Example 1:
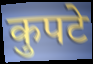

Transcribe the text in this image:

कुपटे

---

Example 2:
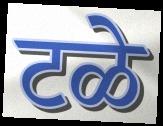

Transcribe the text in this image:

टळे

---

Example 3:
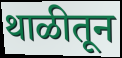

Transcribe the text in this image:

थाळीतून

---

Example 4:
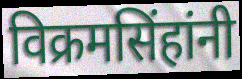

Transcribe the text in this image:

विक्रमसिंहांनी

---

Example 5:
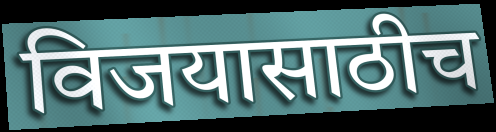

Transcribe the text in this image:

विजयासाठीच